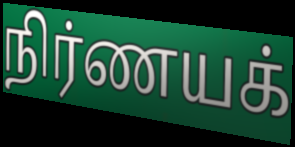
நிர்ணயக்